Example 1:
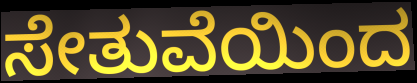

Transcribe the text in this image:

ಸೇತುವೆಯಿಂದ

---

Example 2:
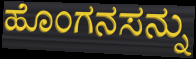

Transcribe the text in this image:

ಹೊಂಗನಸನ್ನು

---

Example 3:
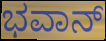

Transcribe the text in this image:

ಭವಾನ್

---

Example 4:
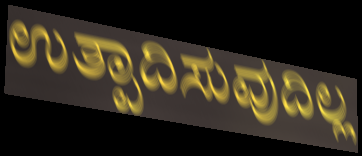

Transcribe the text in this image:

ಉತ್ಪಾದಿಸುವುದಿಲ್ಲ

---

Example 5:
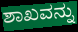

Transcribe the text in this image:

ಶಾಖವನ್ನು